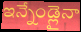
ఇన్నేండ్లైనా